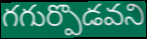
గగుర్పొడవని